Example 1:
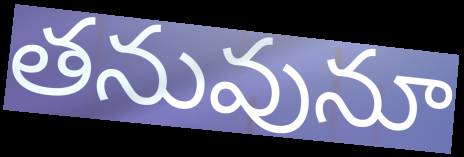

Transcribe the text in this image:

తనువునూ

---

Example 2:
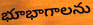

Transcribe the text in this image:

భూభాగాలను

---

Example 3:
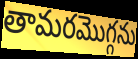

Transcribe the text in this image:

తామరమొగ్గను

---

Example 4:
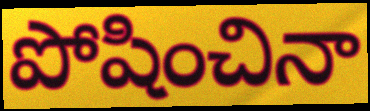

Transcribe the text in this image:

పోషించినా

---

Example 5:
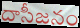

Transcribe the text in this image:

దాసీజనం